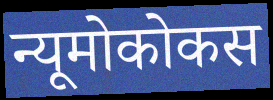
न्यूमोकोकस